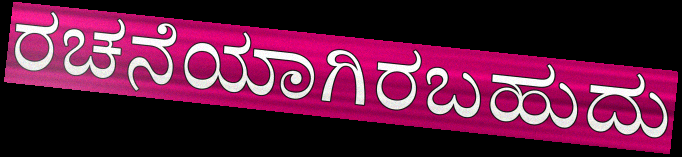
ರಚನೆಯಾಗಿರಬಹುದು